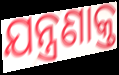
ଯନ୍ତ୍ରଣାକ୍ତ